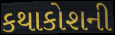
કથાકોશની